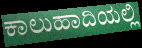
ಕಾಲುಹಾದಿಯಲ್ಲಿ